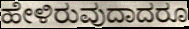
ಹೇಳಿರುವುದಾದರೂ